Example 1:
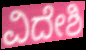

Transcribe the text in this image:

ವಿದೇಶಿ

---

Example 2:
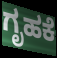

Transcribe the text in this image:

ಗೃಹಕೆ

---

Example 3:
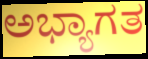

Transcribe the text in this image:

ಅಭ್ಯಾಗತ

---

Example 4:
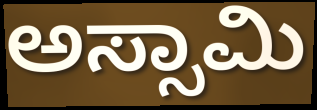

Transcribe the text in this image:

ಅಸ್ಸಾಮಿ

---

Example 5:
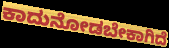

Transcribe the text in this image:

ಕಾದುನೋಡಬೇಕಾಗಿದೆ